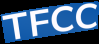
TFCC